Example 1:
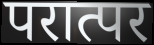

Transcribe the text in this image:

परात्पर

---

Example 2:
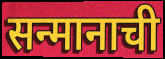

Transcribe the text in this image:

सन्मानाची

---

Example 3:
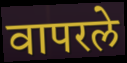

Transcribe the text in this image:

वापरले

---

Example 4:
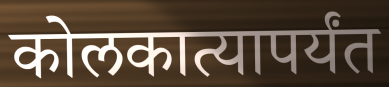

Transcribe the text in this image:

कोलकात्यापर्यंत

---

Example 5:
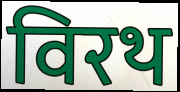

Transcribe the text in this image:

विरथ